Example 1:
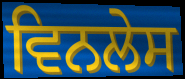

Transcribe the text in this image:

ਵਿਨਲੇਸ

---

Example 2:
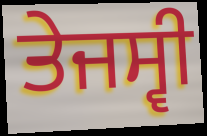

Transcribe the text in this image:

ਤੇਜਸ੍ਵੀ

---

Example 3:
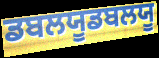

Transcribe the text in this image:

ਡਬਲਯੂਡਬਲਯੂ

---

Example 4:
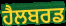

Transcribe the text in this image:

ਹੈਲਬਰਡ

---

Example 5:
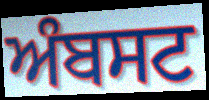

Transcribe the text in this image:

ਅੰਬਸਟ